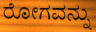
ರೋಗವನ್ನು